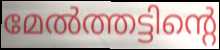
മേൽത്തട്ടിന്റെ